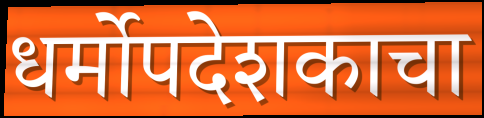
धर्मोपदेशकाचा